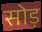
सोड़